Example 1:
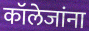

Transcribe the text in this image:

कॉलेजांना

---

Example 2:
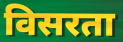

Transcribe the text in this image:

विसरता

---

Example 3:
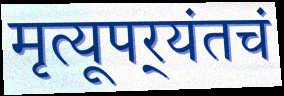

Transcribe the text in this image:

मृत्यूपर्यंतचं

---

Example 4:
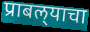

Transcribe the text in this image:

प्राबल्याचा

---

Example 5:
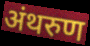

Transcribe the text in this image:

अंथरुण